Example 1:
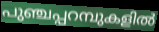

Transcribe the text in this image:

പുഞ്ചപ്പറമ്പുകളിൽ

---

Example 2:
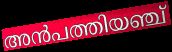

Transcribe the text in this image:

അൻപത്തിയഞ്ച്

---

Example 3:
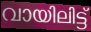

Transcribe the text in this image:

വായിലിട്ട്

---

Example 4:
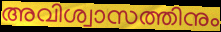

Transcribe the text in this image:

അവിശ്വാസത്തിനും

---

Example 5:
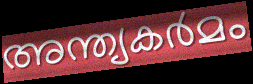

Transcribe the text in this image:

അന്ത്യകർമം